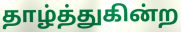
தாழ்த்துகின்ற